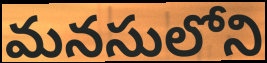
మనసులోని